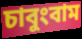
চাবুংবাম